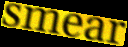
smear